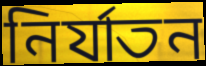
নিৰ্যাতন